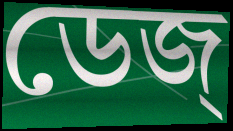
ডেজ্